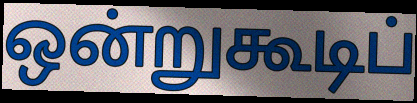
ஒன்றுகூடிப்